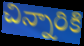
చిన్నారికి